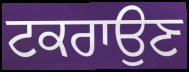
ਟਕਰਾਉਣ